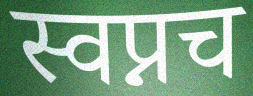
स्वप्नच